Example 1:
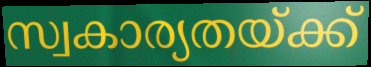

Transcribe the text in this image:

സ്വകാര്യതയ്ക്ക്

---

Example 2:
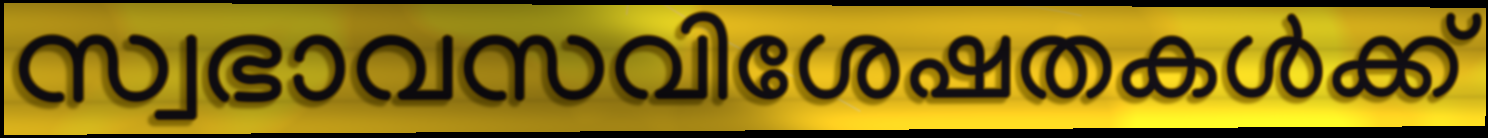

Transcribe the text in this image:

സ്വഭാവസവിശേഷതകൾക്ക്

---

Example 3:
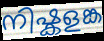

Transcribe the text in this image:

നിഷ്കളങ്ക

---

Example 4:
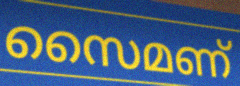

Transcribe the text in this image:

സൈമണ്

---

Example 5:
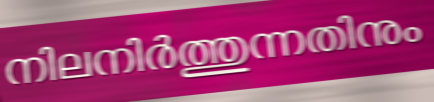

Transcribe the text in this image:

നിലനിർത്തുന്നതിനും